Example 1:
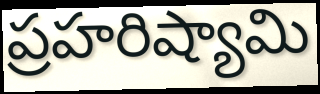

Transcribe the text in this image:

ప్రహరిష్యామి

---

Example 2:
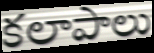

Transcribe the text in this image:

కలాపాలు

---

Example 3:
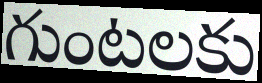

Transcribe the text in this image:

గుంటలకు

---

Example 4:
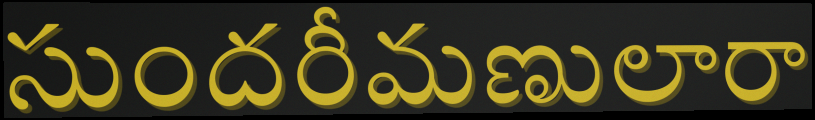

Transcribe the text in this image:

సుందరీమణులారా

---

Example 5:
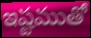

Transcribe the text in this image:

ఇష్టముతో